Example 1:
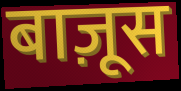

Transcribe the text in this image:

बाज़ूस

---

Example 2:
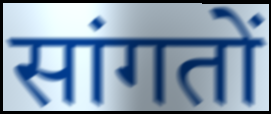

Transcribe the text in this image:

सांगतों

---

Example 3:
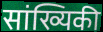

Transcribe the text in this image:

सांख्यिकी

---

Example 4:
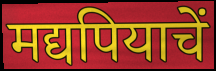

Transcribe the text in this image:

मद्यपियाचें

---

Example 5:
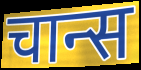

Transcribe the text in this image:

चान्स